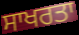
ਸਾਖਰਤਾ